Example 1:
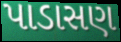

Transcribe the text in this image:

પાડાસણ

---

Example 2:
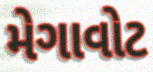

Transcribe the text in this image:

મેગાવોટ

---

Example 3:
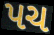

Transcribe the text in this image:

પચ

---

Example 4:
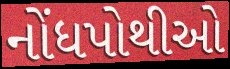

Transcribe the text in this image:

નોંધપોથીઓ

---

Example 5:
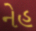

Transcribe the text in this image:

નેહ